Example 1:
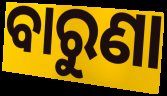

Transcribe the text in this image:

ବାରୁଣା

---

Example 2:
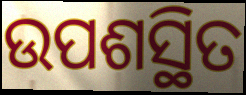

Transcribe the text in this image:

ଉପଶସ୍ଥିତ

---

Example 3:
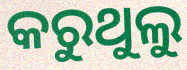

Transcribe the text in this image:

କରୁଥୁଲୁ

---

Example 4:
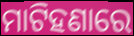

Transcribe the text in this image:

ମାଟିହଣାରେ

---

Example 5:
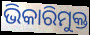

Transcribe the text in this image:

ଭିକାରିମୁକ୍ତ